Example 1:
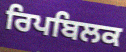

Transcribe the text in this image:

ਰਿਪਬਿਲਕ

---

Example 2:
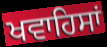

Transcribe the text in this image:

ਖਵਾਹਿਸਾਂ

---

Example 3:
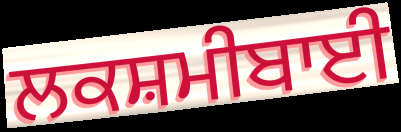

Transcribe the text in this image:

ਲਕਸ਼ਮੀਬਾਈ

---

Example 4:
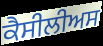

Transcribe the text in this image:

ਕੈਸੀਲੀਅਸ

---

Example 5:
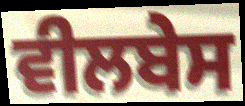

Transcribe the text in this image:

ਵੀਲਬੇਸ